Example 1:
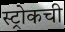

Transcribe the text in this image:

स्ट्रोकची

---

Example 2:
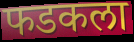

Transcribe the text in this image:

फडकला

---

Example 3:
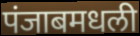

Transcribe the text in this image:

पंजाबमधली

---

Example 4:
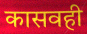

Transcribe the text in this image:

कासवही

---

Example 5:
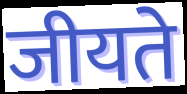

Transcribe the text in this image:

जीयते